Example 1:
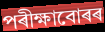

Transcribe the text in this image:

পৰীক্ষাবোৰৰ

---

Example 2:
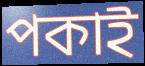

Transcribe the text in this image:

পকাই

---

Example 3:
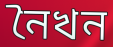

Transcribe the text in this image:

নৈখন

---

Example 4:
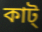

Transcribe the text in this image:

কাট্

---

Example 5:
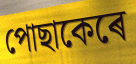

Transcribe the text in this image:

পোছাকেৰে